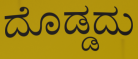
ದೊಡ್ಡದು